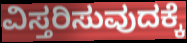
ವಿಸ್ತರಿಸುವುದಕ್ಕೆ